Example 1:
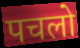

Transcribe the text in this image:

पचलो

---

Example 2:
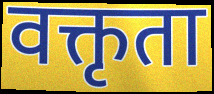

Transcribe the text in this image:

वक्तृता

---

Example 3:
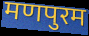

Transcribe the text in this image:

मणपुरम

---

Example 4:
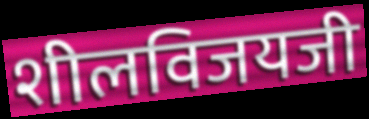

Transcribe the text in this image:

शीलविजयजी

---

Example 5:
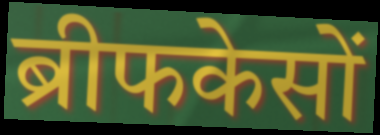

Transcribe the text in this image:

ब्रीफकेसों